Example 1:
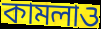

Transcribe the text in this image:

কামলাও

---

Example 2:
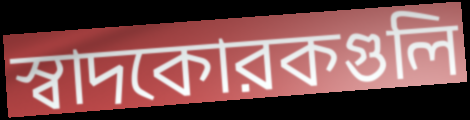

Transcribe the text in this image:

স্বাদকোরকগুলি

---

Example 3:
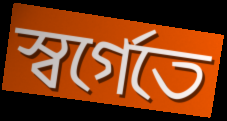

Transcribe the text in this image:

স্বর্গেতে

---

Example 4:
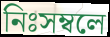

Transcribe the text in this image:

নিঃসম্বলে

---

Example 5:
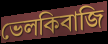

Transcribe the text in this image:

ভেলকিবাজি